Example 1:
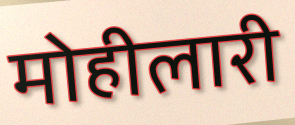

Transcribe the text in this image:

मोहीलारी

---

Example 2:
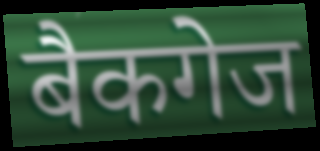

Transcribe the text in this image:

बैकगेज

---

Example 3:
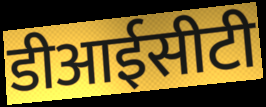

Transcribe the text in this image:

डीआईसीटी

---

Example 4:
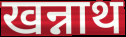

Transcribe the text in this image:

खन्नाथ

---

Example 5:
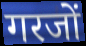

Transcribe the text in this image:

गरजों